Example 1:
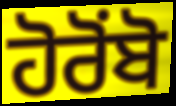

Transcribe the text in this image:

ਹੋਰੋਂਬੋ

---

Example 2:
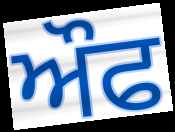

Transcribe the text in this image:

ਔਫ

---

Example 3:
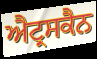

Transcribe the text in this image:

ਐਟ੍ਰਸਕੈਨ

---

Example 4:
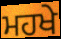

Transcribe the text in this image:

ਮਹਖੇ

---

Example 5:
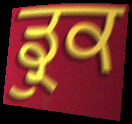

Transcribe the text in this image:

ਡ੍ਰੁਕ